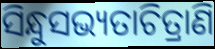
ସିନ୍ଧୁସଭ୍ୟତାଚିତ୍ରାଣି